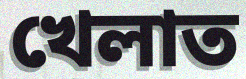
খেলাত